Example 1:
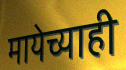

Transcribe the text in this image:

मायेच्याही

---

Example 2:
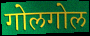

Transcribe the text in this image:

गोलगोल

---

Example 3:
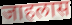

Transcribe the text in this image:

जाहलास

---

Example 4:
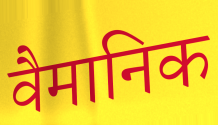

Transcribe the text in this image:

वैमानिक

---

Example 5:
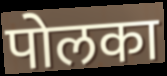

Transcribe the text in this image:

पोलका